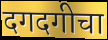
दगदगीचा